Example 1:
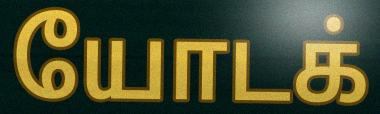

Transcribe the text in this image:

யோடக்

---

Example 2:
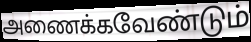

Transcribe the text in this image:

அணைக்கவேண்டும்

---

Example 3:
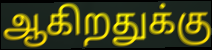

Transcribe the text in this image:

ஆகிறதுக்கு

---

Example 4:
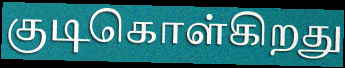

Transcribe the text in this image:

குடிகொள்கிறது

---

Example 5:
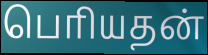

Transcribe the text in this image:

பெரியதன்